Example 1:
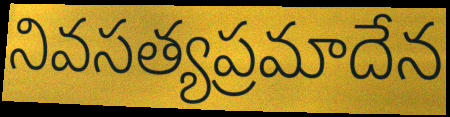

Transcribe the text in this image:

నివసత్యప్రమాదేన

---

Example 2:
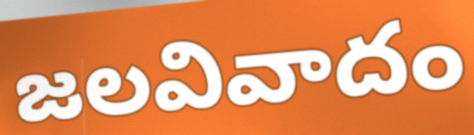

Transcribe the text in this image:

జలవివాదం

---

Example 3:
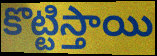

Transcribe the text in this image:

కొట్టిస్తాయి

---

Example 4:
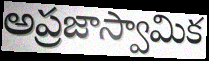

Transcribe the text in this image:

అప్రజాస్వామిక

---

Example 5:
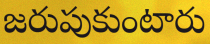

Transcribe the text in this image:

జరుపుకుంటారు